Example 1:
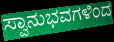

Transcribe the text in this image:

ಸ್ವಾನುಭವಗಳಿಂದ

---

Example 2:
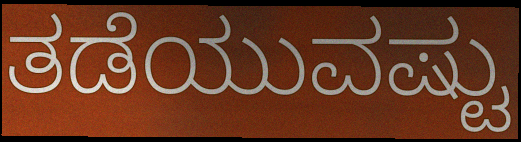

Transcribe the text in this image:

ತಡೆಯುವಷ್ಟು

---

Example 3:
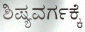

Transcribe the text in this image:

ಶಿಷ್ಯವರ್ಗಕ್ಕೆ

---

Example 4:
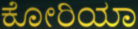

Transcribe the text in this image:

ಕೋರಿಯಾ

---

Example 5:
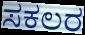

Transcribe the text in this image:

ಸಕಲರ